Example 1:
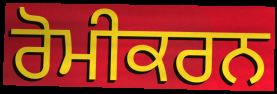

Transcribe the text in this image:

ਰੋਮੀਕਰਨ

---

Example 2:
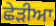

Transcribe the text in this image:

ਛੇੜੀਆ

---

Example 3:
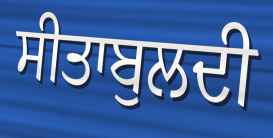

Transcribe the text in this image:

ਸੀਤਾਬੁਲਦੀ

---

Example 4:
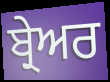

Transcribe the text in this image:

ਬ੍ਰੇਅਰ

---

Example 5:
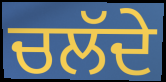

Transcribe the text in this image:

ਚਲੱਦੇ